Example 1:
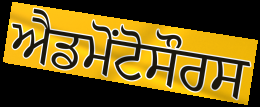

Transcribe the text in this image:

ਐਡਮੋਂਟੋਸੌਰਸ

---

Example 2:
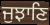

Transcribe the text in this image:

ਜੁਝਾਣਿ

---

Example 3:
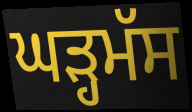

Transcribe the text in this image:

ਘੜ੍ਹਮੱਸ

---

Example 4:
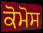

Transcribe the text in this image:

ਕੋਮੋਸ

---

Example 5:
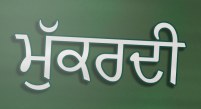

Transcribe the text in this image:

ਮੁੱਕਰਦੀ